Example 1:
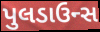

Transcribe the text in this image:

પુલડાઉન્સ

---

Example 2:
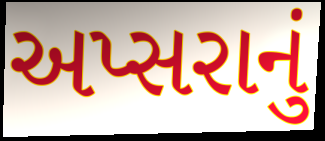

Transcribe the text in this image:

અપ્સરાનું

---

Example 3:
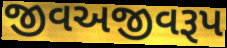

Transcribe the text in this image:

જીવઅજીવરૂપ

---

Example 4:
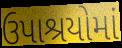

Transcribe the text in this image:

ઉપાશ્રયોમાં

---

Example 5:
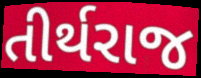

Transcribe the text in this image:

તીર્થરાજ